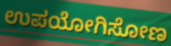
ಉಪಯೋಗಿಸೋಣ